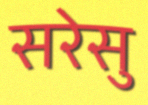
सरेसु